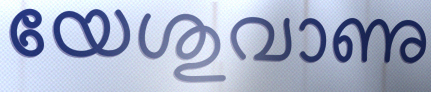
യേശുവാണു